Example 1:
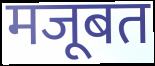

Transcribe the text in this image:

मजूबत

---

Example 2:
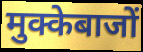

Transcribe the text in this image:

मुक्केबाजों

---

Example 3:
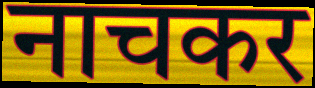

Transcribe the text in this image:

नाचकर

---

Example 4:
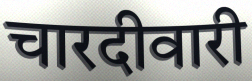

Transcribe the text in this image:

चारदीवारी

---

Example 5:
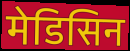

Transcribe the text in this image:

मेडिसिन